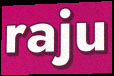
raju